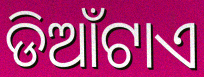
ଡିଆଁଟାଏ